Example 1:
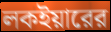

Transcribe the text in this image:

লকইয়ারের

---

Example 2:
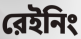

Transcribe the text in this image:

রেইনিং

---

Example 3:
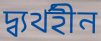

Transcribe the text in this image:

দ্ব্যর্থহীন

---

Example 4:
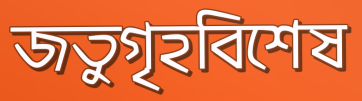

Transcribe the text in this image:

জতুগৃহবিশেষ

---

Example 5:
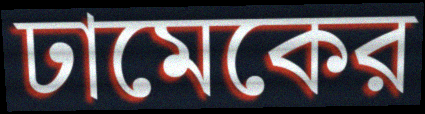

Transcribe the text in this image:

ঢামেকের